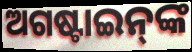
ଅଗଷ୍ଟାଇନ୍‌ଙ୍କ